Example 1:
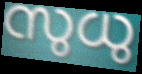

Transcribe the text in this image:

സുധു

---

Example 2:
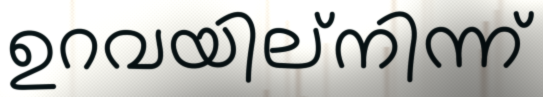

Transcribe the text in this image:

ഉറവയില്നിന്ന്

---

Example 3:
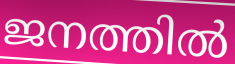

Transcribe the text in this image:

ജനത്തിൽ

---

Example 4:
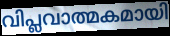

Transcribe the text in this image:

വിപ്ലവാത്മകമായി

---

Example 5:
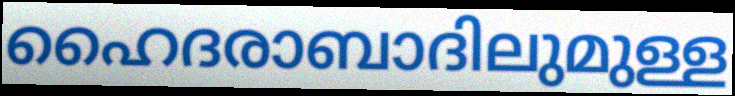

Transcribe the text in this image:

ഹൈദരാബാദിലുമുള്ള